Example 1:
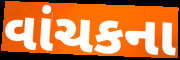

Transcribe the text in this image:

વાંચકના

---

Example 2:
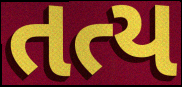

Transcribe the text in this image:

તત્ય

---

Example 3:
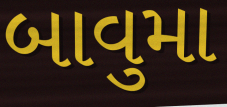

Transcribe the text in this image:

બાવુમા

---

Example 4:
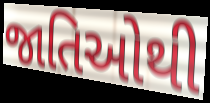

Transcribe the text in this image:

જાતિઓથી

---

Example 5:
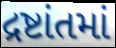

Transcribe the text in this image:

દ્રષ્ટાંતમાં